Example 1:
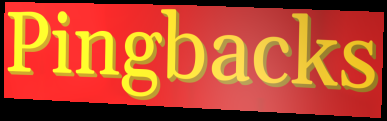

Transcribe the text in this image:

Pingbacks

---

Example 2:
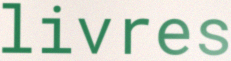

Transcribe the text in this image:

livres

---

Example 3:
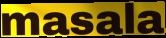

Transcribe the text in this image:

masala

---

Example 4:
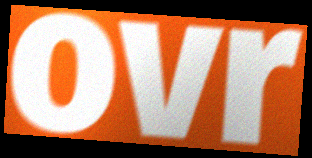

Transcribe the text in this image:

ovr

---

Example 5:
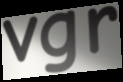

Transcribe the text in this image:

vgr